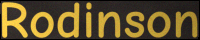
Rodinson